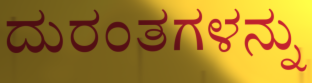
ದುರಂತಗಳನ್ನು